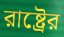
রাষ্ট্রের